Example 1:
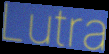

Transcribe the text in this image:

Lutra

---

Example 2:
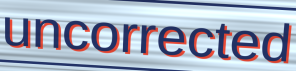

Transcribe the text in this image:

uncorrected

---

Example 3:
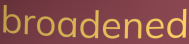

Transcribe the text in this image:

broadened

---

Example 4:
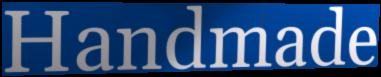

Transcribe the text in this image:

Handmade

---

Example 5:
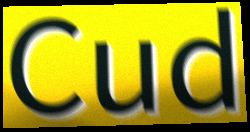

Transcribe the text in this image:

Cud